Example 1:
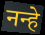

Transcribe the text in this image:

नन्हे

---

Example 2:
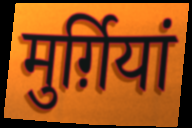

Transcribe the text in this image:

मुर्ग़ियां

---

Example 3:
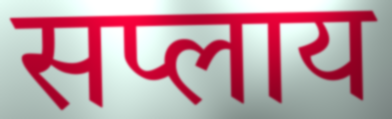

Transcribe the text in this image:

सप्लाय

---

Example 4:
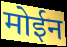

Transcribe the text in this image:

मोईन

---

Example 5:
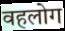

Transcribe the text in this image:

वहलोग